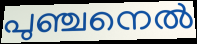
പുഞ്ചനെൽ